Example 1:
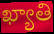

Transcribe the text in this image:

ఖ్యాతి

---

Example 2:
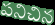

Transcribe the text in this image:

పనిచిన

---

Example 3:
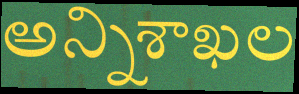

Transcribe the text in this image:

అన్నిశాఖల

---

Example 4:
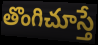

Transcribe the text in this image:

తొంగిచూస్తే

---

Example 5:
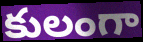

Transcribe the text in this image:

కులంగా